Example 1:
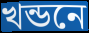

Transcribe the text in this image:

খন্ডনে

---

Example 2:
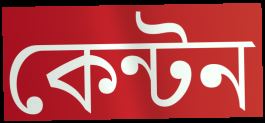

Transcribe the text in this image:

কেন্টন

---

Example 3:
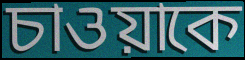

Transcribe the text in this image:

চাওয়াকে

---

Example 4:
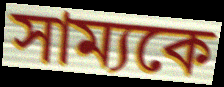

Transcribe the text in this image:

সাম্যকে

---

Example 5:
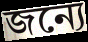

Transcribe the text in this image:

জন্যে